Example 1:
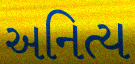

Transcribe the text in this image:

અનિત્ય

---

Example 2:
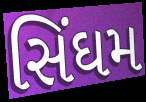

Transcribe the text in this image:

સિંઘમ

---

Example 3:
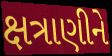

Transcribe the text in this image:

ક્ષત્રાણીને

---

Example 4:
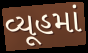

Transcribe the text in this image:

વ્યૂહમાં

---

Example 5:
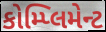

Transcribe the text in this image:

કોમ્પ્લિમેન્ટ